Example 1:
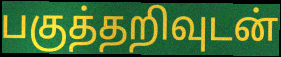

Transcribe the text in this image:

பகுத்தறிவுடன்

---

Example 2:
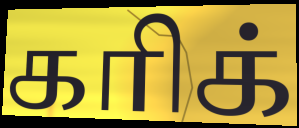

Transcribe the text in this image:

கரிக்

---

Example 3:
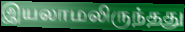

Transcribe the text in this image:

இயலாமலிருந்தது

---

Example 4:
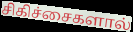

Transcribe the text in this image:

சிகிச்சைகளால்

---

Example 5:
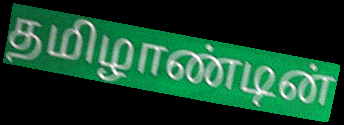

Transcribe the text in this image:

தமிழாண்டின்